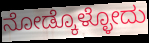
ನೋಡ್ಕೊಳ್ಳೋದು